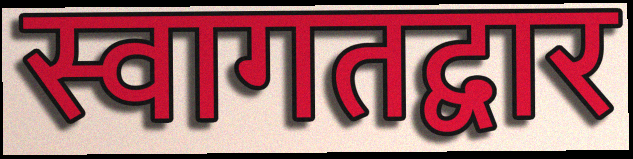
स्वागतद्वार